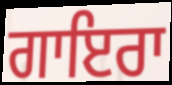
ਗਾਇਰਾ